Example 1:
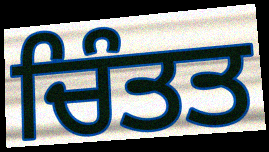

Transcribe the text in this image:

ਚਿੰਤਤ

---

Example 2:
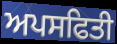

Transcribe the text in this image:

ਅਪਸਫਿਤੀ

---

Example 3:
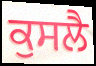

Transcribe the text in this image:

ਕੁਸਲੈ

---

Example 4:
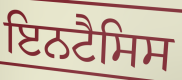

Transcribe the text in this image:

ਇਨਟੈਸਿਸ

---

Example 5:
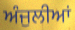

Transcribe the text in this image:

ਅੰਜੁਲੀਆਂ